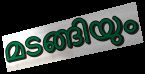
മടങ്ങിയും